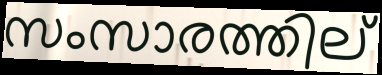
സംസാരത്തില്